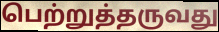
பெற்றுத்தருவது